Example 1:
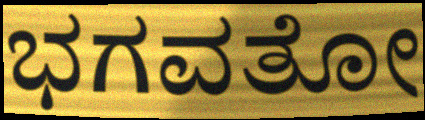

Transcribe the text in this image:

ಭಗವತೋ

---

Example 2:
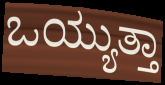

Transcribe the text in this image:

ಒಯ್ಯುತ್ತಾ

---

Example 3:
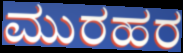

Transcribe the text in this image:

ಮುರಹರ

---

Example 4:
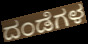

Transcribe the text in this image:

ದಂಡೆಗಳ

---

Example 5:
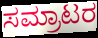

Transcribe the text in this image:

ಸಮ್ರಾಟರ